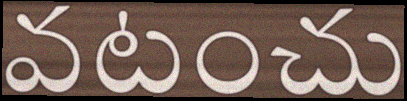
వటంచు